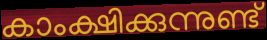
കാംക്ഷിക്കുന്നുണ്ട്